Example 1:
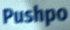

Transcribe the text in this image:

Pushpo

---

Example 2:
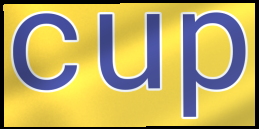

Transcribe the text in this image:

cup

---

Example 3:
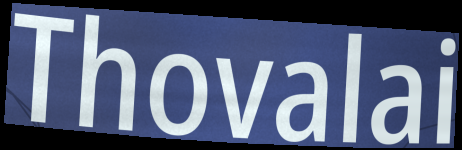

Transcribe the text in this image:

Thovalai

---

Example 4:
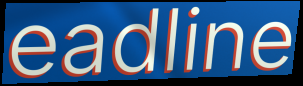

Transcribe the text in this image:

eadline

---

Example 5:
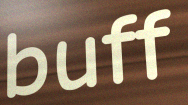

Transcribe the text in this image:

buff